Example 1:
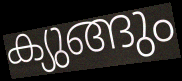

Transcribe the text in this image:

ക്യുങ്ങും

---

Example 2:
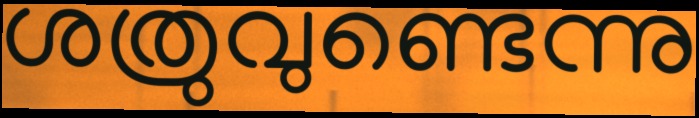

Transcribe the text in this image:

ശത്രുവുണ്ടെന്നു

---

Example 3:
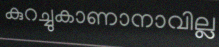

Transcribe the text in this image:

കുറച്ചുകാണാനാവില്ല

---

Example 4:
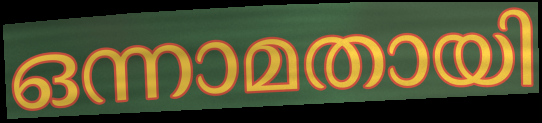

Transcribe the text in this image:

ഒന്നാമതായി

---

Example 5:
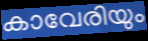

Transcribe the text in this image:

കാവേരിയും